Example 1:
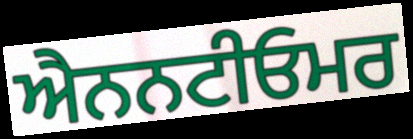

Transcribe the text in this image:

ਐਨਨਟੀਓਮਰ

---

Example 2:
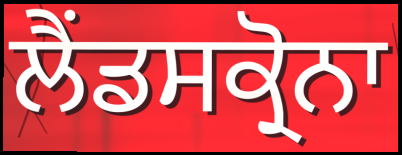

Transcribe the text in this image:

ਲੈਂਡਸਕ੍ਰੋਨਾ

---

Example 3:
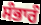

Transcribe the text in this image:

ਸੰਭਾਰੰ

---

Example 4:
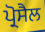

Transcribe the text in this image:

ਪ੍ਰੋਸੈਲ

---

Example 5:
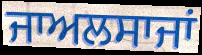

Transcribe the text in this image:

ਜਾਅਲਸਾਜਾਂ